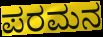
ಪರಮನ